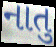
નાતુ